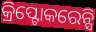
କ୍ରିପ୍ଟୋକରେନ୍ସି